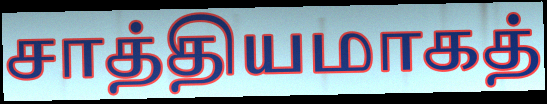
சாத்தியமாகத்